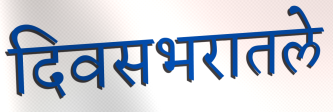
दिवसभरातले